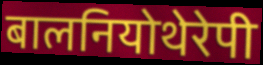
बालनियोथेरेपी